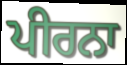
ਪੀਰਨਾ